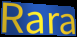
Rara